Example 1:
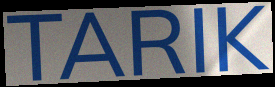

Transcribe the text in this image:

TARIK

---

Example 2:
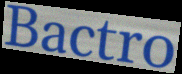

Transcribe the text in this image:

Bactro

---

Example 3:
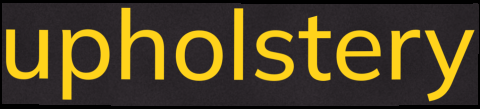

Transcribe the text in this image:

upholstery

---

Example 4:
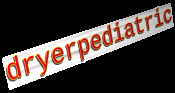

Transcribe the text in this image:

dryerpediatric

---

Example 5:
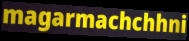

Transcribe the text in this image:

magarmachchhni